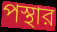
পস্থার